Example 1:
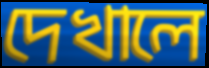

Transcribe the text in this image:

দেখালে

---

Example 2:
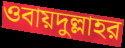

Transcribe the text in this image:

ওবায়দুল্লাহর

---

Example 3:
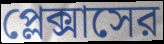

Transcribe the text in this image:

প্লেক্সাসের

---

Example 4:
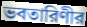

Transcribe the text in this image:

ভবতারিণীর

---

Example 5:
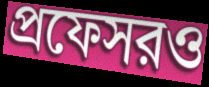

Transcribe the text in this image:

প্রফেসরও